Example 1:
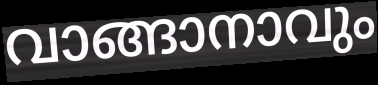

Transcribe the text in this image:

വാങ്ങാനാവും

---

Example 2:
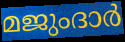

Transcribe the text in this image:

മജുംദാർ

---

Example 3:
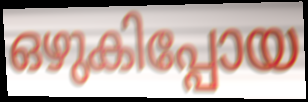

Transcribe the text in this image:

ഒഴുകിപ്പോയ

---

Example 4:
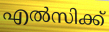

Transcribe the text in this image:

എൽസിക്ക്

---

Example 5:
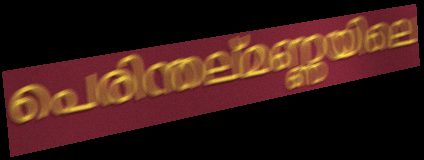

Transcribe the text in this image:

പെരിന്തല്മണ്ണയിലെ